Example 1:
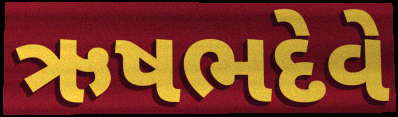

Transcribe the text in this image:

ઋષભદેવે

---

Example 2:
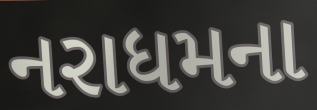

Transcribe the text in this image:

નરાધમના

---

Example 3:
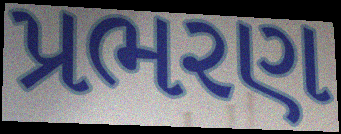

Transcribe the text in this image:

પ્રભરણ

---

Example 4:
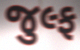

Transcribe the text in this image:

જુલ્ફ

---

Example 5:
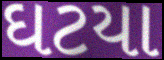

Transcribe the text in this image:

ઘટયા